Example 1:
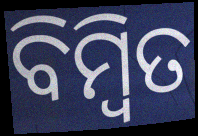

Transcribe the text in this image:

ବିମ୍ବିତ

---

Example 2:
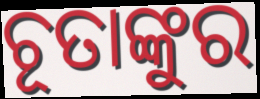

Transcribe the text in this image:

ଚୂତାଙ୍କୁର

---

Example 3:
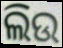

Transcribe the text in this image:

ଲିଉ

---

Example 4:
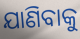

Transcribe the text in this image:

ଯାଣିବାକୁ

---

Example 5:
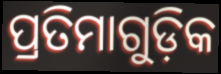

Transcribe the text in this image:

ପ୍ରତିମାଗୁଡ଼ିକ